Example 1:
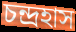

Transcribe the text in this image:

চন্দ্রহাস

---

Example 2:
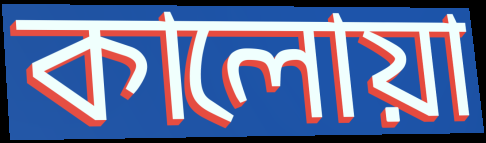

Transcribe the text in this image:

কালোয়া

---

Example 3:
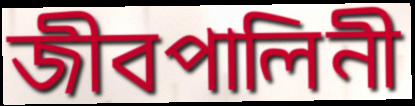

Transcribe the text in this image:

জীবপালিনী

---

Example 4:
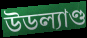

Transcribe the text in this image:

উডল্যাণ্ড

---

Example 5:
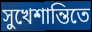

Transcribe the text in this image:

সুখেশান্তিতে